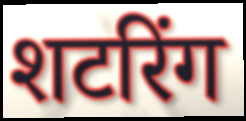
शटरिंग